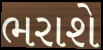
ભરાશે